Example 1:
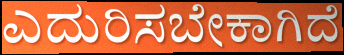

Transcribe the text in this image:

ಎದುರಿಸಬೇಕಾಗಿದೆ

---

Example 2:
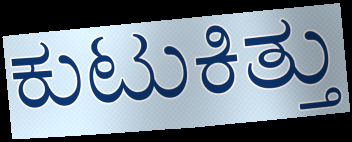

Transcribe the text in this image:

ಕುಟುಕಿತ್ತು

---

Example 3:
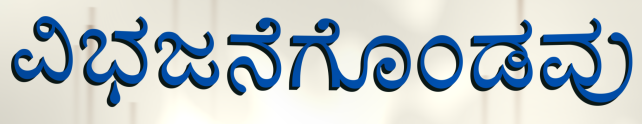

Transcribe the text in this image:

ವಿಭಜನೆಗೊಂಡವು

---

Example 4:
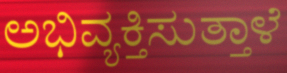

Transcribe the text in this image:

ಅಭಿವ್ಯಕ್ತಿಸುತ್ತಾಳೆ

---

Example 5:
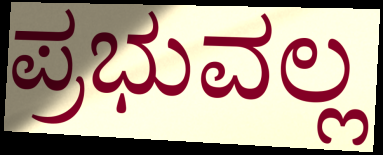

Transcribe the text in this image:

ಪ್ರಭುವಲ್ಲ